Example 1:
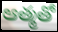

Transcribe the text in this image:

ఆత్మతో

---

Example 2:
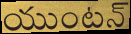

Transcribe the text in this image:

యుంటన్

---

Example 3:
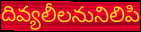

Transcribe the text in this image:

దివ్యలీలనునిలిపి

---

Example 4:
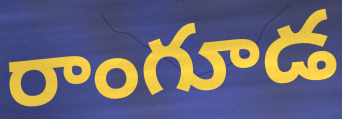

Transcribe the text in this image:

రాంగూడ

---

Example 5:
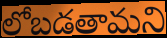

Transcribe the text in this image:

లోబడతామని